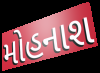
મોહનાશ